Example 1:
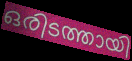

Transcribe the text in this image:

ഒരിടത്തായി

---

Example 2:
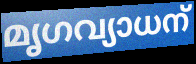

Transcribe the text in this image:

മൃഗവ്യാധന്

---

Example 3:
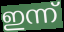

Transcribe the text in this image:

ഇന്ന്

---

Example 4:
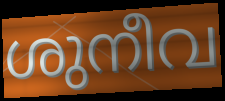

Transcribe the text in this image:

ശുനീവ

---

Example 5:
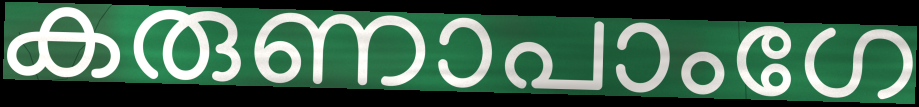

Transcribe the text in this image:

കരുണാപാംഗേ